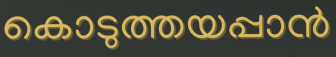
കൊടുത്തയപ്പാൻ